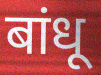
बांधू